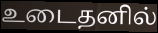
உடைதனில்